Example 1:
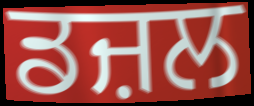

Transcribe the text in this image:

ਡਜ਼ਲ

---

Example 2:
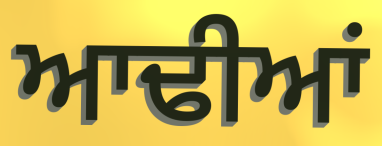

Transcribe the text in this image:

ਆਢੀਆਂ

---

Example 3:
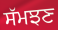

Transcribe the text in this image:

ਸੱਮਝਣ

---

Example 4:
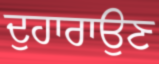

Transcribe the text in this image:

ਦੁਹਾਰਾਉਣ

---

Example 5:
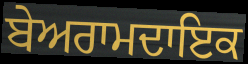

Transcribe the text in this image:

ਬੇਅਰਾਮਦਾਇਕ